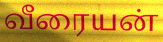
வீரையன்